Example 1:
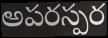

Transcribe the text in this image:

అపరస్పర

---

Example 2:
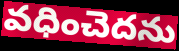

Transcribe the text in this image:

వధించెదను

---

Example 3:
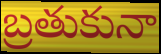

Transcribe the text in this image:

బ్రతుకునా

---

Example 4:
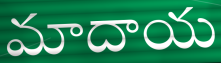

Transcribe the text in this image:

మాదాయ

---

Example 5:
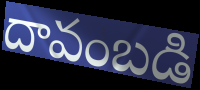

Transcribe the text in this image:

దావంబడి